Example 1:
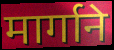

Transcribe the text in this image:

मार्गाने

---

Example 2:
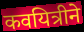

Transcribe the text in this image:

कवयित्रीने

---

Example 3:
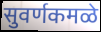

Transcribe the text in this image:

सुवर्णकमळे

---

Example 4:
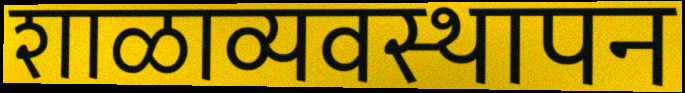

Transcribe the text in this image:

शाळाव्यवस्थापन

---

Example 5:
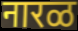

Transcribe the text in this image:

नारळ